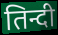
तिन्दी